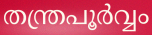
തന്ത്രപൂർവ്വം